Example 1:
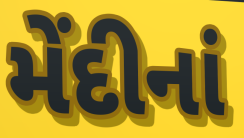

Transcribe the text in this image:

મેંદીનાં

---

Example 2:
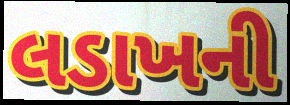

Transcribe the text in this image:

લડાખની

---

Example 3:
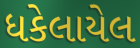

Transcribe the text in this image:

ધકેલાયેલ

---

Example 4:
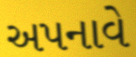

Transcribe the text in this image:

અપનાવે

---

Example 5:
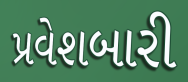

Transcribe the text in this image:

પ્રવેશબારી